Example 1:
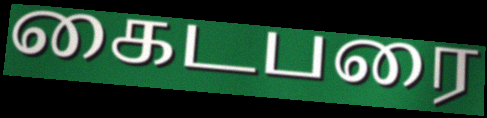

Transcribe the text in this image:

கைடபரை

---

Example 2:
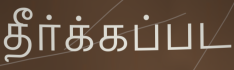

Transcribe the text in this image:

தீர்க்கப்பட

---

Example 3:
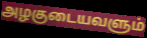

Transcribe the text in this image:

அழகுடையவளும்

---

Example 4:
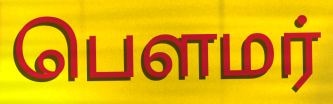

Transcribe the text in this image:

பௌமர்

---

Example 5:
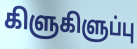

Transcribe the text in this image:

கிளுகிளுப்பு